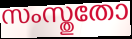
സംസ്തുതോ